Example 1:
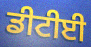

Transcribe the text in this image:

ਡੀਟੀਈ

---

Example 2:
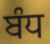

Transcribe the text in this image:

ਬੰਧ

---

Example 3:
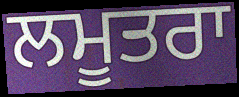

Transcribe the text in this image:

ਲਮੂਤਰਾ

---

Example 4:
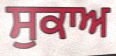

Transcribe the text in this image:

ਸੁਕਾਅ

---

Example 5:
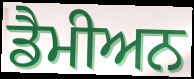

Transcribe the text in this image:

ਡੈਮੀਅਨ